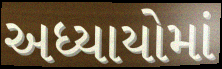
અધ્યાયોમાં